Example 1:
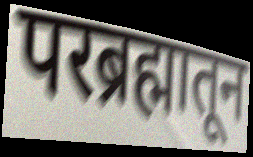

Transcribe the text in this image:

परब्रह्मातून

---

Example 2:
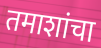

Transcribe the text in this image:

तमाशांचा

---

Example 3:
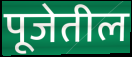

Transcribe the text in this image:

पूजेतील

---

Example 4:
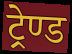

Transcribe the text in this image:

ट्रेण्ड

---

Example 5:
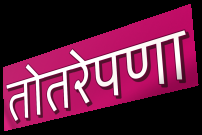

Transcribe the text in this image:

तोतरेपणा